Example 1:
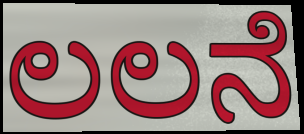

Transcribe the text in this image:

ಲಲನೆ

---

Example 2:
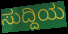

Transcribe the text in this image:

ಸುದ್ದಿಯ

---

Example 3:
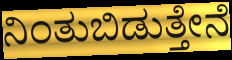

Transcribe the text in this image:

ನಿಂತುಬಿಡುತ್ತೇನೆ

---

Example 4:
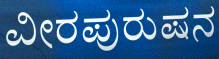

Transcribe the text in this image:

ವೀರಪುರುಷನ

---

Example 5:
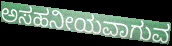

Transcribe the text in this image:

ಅಸಹನೀಯವಾಗುವ